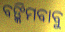
ବଙ୍କିମବାବୁ